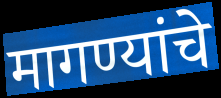
मागण्यांचे